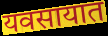
यवसायात